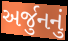
અર્જુનનું